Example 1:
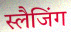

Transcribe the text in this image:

स्लैजिंग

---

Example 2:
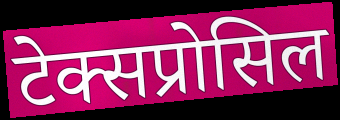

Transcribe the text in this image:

टेक्सप्रोसिल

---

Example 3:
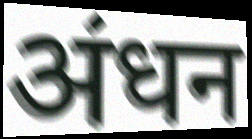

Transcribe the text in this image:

अंधन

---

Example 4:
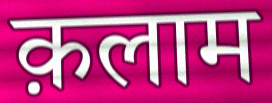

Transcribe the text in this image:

क़लाम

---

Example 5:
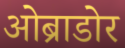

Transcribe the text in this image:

ओब्राडोर